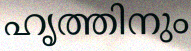
ഹൃത്തിനും